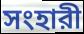
সংহারী